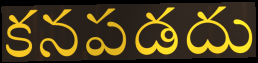
కనపడదు